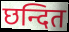
छन्दित